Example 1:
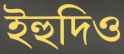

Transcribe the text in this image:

ইহুদিও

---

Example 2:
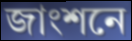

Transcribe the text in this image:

জাংশনে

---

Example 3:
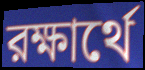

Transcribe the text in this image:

রক্ষার্থে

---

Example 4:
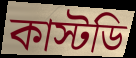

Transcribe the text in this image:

কাস্টডি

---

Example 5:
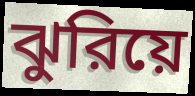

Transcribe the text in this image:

ঝুরিয়ে